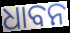
ଧାବନ